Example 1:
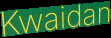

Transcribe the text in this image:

Kwaidan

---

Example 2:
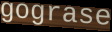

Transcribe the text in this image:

gograse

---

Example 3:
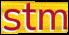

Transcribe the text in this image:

stm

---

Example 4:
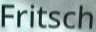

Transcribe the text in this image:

Fritsch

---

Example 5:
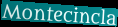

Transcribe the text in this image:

Montecincla